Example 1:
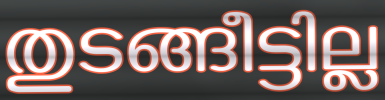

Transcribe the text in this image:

തുടങ്ങീട്ടില്ല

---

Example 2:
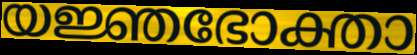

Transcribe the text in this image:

യജ്ഞഭോക്താ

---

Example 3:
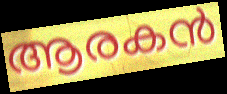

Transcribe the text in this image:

ആരകൻ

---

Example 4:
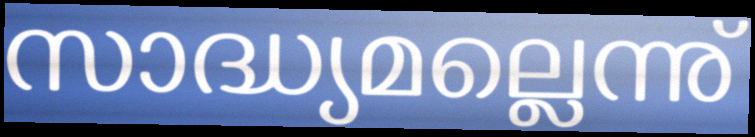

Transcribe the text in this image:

സാദ്ധ്യമല്ലെന്നു്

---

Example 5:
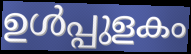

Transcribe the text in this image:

ഉൾപ്പുളകം